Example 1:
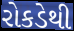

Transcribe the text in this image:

રોકડેથી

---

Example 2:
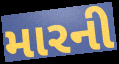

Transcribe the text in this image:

મારની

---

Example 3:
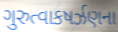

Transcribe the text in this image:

ગુરુત્વાકષર્ઝણના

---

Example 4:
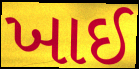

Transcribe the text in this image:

ખાઈ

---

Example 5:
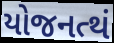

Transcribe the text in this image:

યોજનત્થં